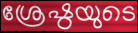
ശ്രേഷ്ഠയുടെ